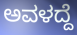
ಅವಳದ್ದೆ